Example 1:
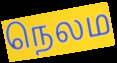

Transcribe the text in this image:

நெலம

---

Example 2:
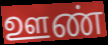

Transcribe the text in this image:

ஊண்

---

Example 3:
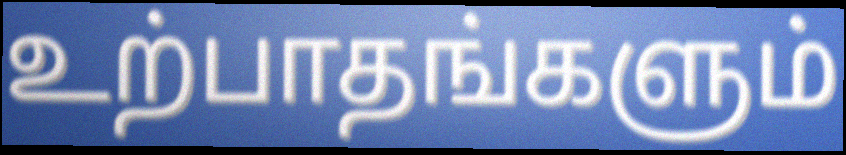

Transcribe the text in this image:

உற்பாதங்களும்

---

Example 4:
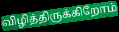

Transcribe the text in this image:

விழித்திருக்கிறோம்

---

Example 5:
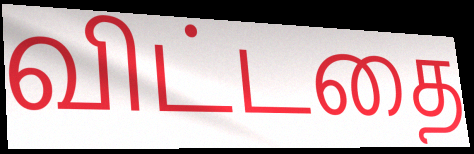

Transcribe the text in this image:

விட்டதை